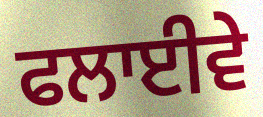
ਫਲਾਈਵੇ